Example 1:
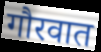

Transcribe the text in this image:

गौरवात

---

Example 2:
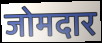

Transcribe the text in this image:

जोमदार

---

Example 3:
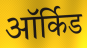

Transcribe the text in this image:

ऑर्किड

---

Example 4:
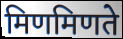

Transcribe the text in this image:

मिणमिणते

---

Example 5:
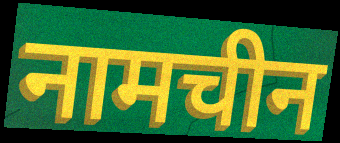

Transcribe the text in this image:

नामचीन